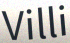
Villi